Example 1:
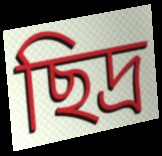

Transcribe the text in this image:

ছিদ্র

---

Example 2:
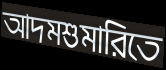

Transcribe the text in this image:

আদমশুমারিতে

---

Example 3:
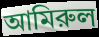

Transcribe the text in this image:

আমিরুল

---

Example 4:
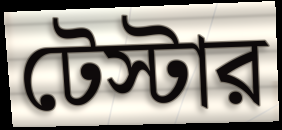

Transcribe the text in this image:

টেস্টার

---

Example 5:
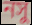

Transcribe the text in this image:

নসু